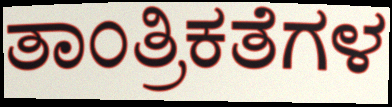
ತಾಂತ್ರಿಕತೆಗಳ